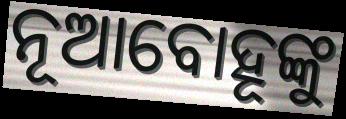
ନୂଆବୋହୂଙ୍କୁ